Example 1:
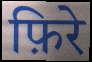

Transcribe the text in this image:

फ़िरे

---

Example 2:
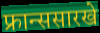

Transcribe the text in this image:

फ्रान्ससारखे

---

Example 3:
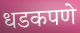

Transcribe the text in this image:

धडकपणे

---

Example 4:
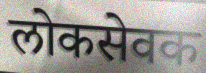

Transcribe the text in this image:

लोकसेवक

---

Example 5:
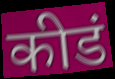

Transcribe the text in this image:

कीडं